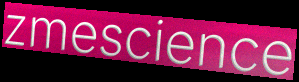
zmescience